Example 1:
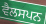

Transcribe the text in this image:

ਵੈਲਸਪਨ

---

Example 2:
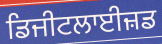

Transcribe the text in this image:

ਡਿਜੀਟਲਾਈਜ਼ਡ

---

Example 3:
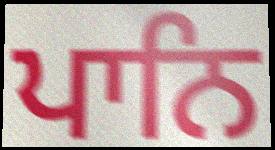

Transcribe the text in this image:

ਪਾਨਿ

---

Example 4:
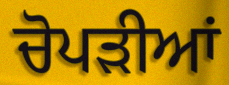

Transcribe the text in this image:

ਚੋਪੜੀਆਂ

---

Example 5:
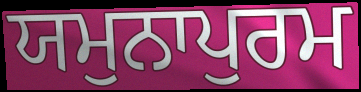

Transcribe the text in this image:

ਯਮੁਨਾਪੁਰਮ